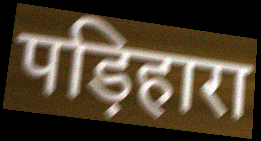
पड़िहारा